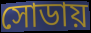
সোডায়